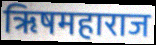
ॠिषमहाराज